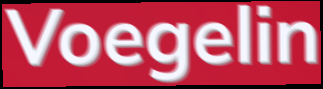
Voegelin